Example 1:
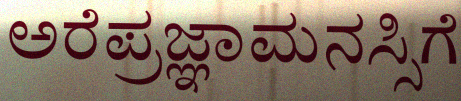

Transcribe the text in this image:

ಅರೆಪ್ರಜ್ಞಾಮನಸ್ಸಿಗೆ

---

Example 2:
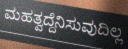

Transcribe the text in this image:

ಮಹತ್ವದ್ದೆನಿಸುವುದಿಲ್ಲ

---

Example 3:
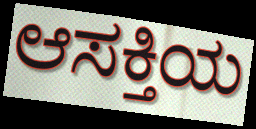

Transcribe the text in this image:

ಆಸಕ್ತಿಯ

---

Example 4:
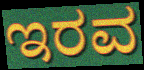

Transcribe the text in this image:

ಇರವ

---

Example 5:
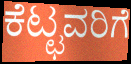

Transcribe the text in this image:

ಕೆಟ್ಟವರಿಗೆ